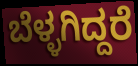
ಬೆಳ್ಳಗಿದ್ದರೆ